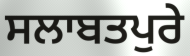
ਸਲਾਬਤਪੁਰੇ